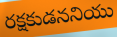
రక్షకుడననియు